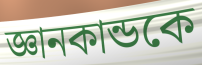
জ্ঞানকান্ডকে